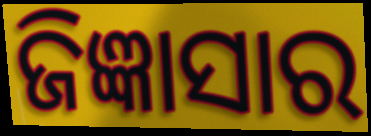
ଜିଜ୍ଞାସାର